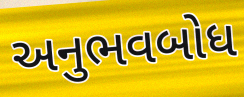
અનુભવબોધ